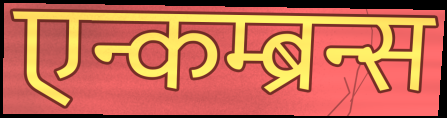
एन्कम्ब्रन्स